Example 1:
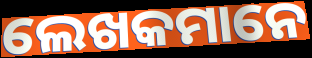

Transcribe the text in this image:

ଲେଖକମାନେ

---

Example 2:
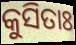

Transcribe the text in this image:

କୁସିତାଃ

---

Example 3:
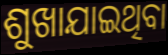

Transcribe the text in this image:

ଶୁଖାଯାଇଥିବା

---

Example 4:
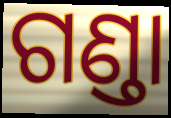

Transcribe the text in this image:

ଗଣ୍ଡା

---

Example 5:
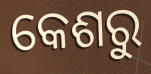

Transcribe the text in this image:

କେଶରୁ